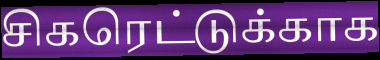
சிகரெட்டுக்காக